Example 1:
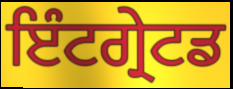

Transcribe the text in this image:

ਇੰਟਗ੍ਰੇਟਡ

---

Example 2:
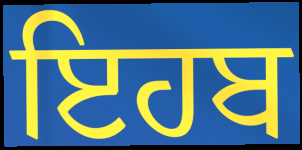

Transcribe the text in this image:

ਇਹਬ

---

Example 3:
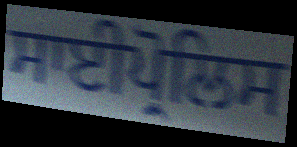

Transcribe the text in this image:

ਸਾਈਪ੍ਰੋਲਿਸ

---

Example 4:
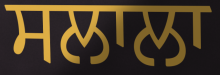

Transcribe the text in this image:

ਸਲਾਲਾ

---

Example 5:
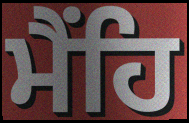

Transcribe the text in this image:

ਮੈਂਹਿ